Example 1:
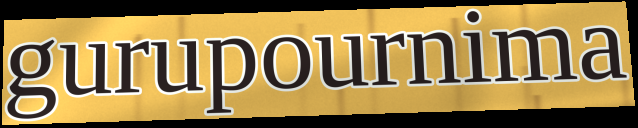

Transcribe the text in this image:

gurupournima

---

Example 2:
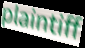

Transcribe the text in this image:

plaintiff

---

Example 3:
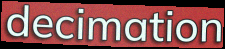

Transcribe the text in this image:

decimation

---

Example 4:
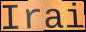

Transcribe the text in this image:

Irai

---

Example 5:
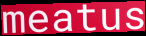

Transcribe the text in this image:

meatus